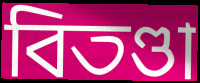
বিতণ্ডা